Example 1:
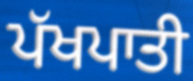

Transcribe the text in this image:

ਪੱਖਪਾਤੀ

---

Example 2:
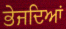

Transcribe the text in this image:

ਭੇਜਦਿਆਂ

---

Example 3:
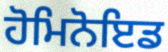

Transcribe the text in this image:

ਹੋਮਿਨੋਇਡ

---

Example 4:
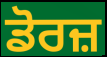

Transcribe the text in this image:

ਡੋਰਜ਼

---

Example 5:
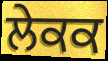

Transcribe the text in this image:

ਲੇਕਕ